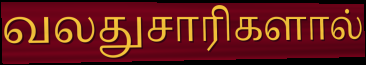
வலதுசாரிகளால்